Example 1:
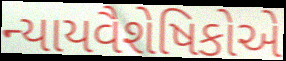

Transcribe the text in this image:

ન્યાયવૈશેષિકોએ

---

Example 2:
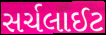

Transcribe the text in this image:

સર્ચલાઈટ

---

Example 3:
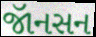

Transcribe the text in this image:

જૉનસન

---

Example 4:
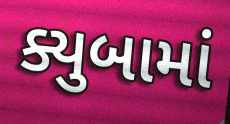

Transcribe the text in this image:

ક્યુબામાં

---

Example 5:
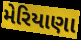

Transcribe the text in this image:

મેરિયાણા